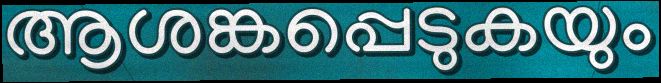
ആശങ്കപ്പെടുകയും